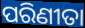
ପରିଣୀତା